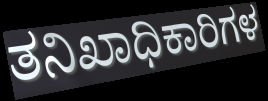
ತನಿಖಾಧಿಕಾರಿಗಳ